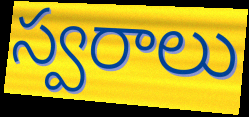
స్వరాలు